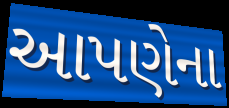
આપણેના